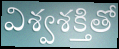
విశ్వశక్తితో